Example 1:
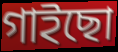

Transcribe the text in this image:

গাইছো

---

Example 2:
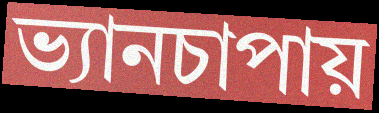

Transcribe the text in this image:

ভ্যানচাপায়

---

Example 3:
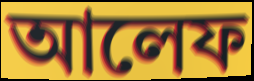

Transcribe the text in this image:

আলেফ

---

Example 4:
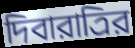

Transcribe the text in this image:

দিবারাত্রির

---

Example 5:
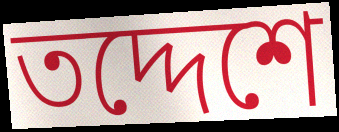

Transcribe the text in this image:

তদ্দেশে